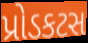
પ્રોડકટસ